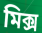
মিক্স